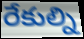
రేకుల్ని